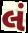
લં